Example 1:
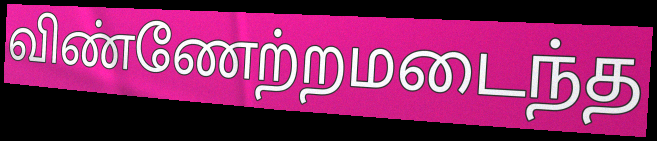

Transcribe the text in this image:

விண்ணேற்றமடைந்த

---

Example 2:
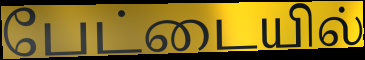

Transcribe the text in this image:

பேட்டையில்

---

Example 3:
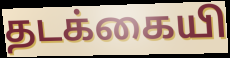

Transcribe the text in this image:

தடக்கையி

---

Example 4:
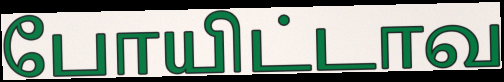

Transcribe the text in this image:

போயிட்டாவ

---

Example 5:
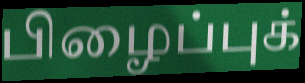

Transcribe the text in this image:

பிழைப்புக்